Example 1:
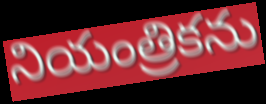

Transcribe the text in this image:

నియంత్రికను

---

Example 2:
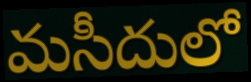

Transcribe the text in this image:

మసీదులో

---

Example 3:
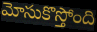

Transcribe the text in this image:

మోసుకొస్తోంది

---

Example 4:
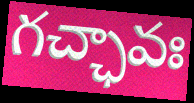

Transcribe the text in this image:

గచ్ఛావః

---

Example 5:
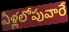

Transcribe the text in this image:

ఏళ్లలోపువారే